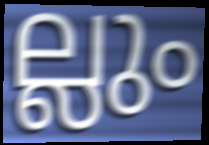
ല്ലും